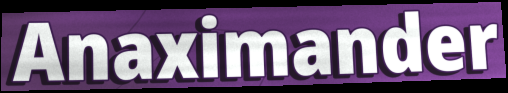
Anaximander